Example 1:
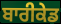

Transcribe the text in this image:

ਬਾਰੀਕੇਡ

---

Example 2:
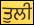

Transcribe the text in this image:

ਤੁਲੀ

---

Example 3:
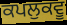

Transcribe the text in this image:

ਕਪਲੁਕਵੂ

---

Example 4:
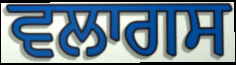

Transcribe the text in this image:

ਵਲਾਗਸ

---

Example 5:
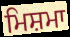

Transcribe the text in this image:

ਮਿਸ਼ਮਾ